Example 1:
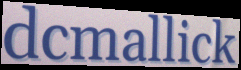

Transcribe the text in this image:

dcmallick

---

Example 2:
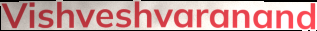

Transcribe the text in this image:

Vishveshvaranand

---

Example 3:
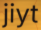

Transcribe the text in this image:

jiyt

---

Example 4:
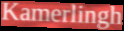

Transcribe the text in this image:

Kamerlingh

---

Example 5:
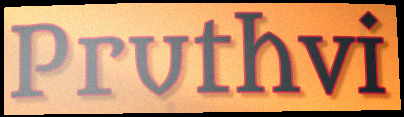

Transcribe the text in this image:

Pruthvi